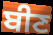
ਬੀਣ